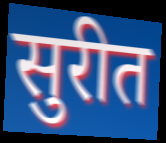
सुरीत